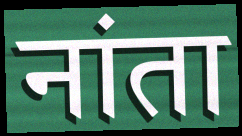
नांता